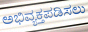
ಅಭಿವ್ಯಕ್ತಪಡಿಸಲು